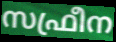
സഫ്രീന